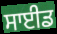
ਸਾਈਡ